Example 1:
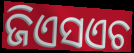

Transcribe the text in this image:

ଜିଏସଏଚ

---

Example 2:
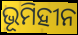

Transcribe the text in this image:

ଭୂମିହୀନ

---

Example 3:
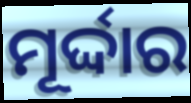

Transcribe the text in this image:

ମୂର୍ଦ୍ଦାର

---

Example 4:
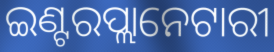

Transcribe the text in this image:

ଇଣ୍ଟରପ୍ଲାନେଟାରୀ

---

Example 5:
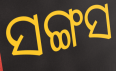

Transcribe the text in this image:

ସଙ୍ଗସ